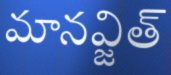
మానవ్జిత్